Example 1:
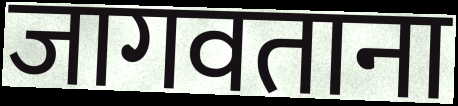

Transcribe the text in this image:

जागवताना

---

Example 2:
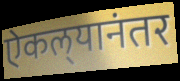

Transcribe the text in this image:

ऐकल्यानंतर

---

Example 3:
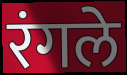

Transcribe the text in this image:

रंगले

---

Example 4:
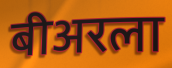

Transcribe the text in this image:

बीअरला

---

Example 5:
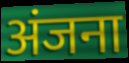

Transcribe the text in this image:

अंजना